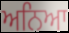
ਅਨਿਆ